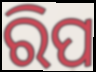
ରିପ